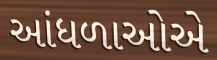
આંધળાઓએ